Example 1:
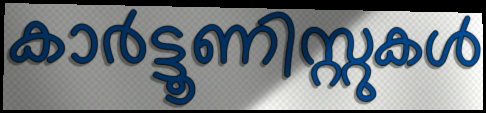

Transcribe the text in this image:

കാർട്ടൂണിസ്റ്റുകൾ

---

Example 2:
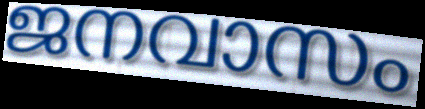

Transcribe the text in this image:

ജനവാസം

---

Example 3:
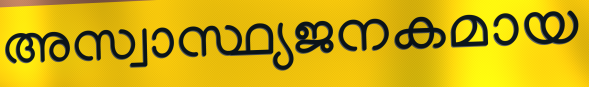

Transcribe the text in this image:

അസ്വാസ്ഥ്യജനകമായ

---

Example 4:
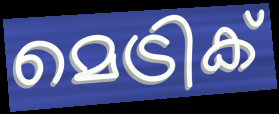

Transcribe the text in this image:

മെട്രിക്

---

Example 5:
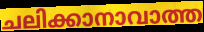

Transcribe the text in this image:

ചലിക്കാനാവാത്ത